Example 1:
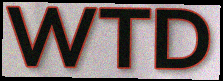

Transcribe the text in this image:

WTD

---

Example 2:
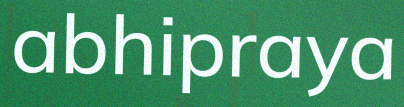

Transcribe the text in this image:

abhipraya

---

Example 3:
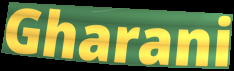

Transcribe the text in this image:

Gharani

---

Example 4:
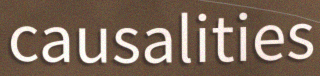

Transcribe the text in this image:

causalities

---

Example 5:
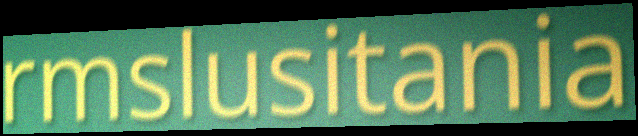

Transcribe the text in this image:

rmslusitania